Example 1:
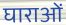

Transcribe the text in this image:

घाराओं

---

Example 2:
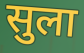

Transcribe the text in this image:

सुला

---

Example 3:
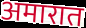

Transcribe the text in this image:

अमारात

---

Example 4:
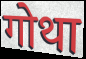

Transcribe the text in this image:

गोथा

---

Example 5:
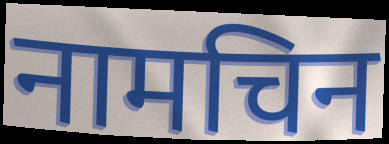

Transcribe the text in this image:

नामचिन